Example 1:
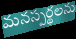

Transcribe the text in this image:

మనస్పర్థలను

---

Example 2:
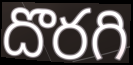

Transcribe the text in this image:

దొరగి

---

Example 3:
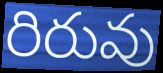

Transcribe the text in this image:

రిరువు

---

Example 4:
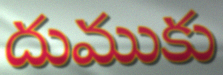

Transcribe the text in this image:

దుముకు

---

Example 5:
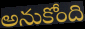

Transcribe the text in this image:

అనుకోంది